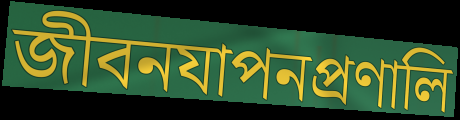
জীবনযাপনপ্রণালি